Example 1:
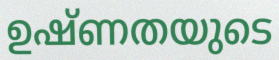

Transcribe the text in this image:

ഉഷ്ണതയുടെ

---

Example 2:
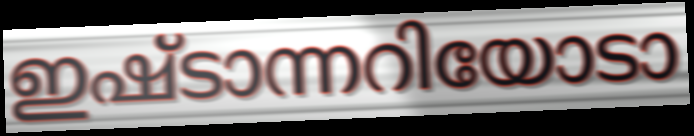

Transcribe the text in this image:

ഇഷ്ടാന്നറിയോടാ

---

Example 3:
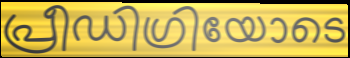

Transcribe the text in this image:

പ്രീഡിഗ്രിയോടെ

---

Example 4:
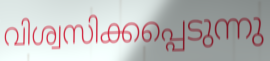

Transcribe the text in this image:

വിശ്വസിക്കപ്പെടുന്നു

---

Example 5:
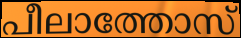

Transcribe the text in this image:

പീലാത്തോസ്